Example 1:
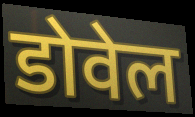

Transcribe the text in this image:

डोवेल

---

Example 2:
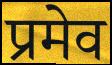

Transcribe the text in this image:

प्रमेव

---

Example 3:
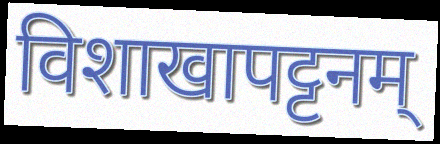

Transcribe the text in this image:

विशाखापट्टनम्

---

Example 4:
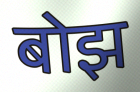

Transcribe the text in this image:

बोझ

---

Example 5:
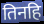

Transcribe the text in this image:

तिनहि